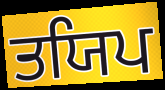
ਤਯਿਪ